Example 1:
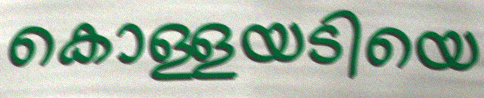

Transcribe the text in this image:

കൊള്ളയടിയെ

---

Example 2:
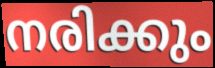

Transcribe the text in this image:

നരിക്കും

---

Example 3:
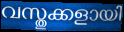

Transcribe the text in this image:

വസ്തുക്കളായി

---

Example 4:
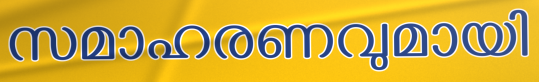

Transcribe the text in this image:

സമാഹരണവുമായി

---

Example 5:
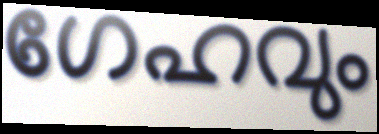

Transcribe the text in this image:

ഗേഹവും